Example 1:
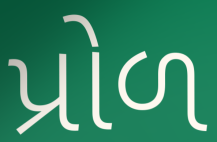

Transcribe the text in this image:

પ્રોળ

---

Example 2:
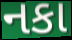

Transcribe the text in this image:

નકા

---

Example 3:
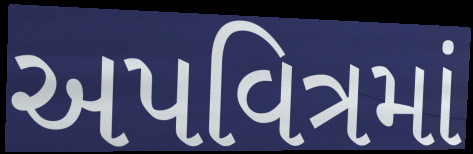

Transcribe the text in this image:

અપવિત્રમાં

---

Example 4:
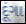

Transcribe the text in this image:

દૂંગા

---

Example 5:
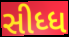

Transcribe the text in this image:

સીધ્ધ